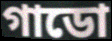
গাডো